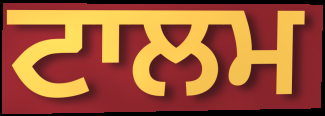
ਟਾਲਮ